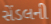
સેંડલની